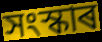
সংস্কাৰ